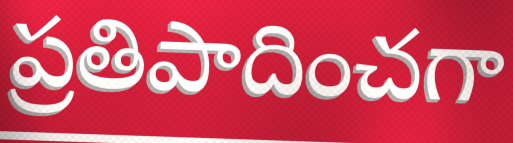
ప్రతిపాదించగా